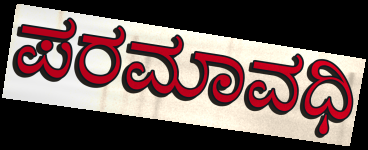
ಪರಮಾವಧಿ